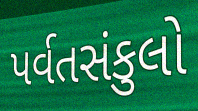
પર્વતસંકુલો